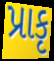
પ્રાકૃ